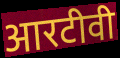
आरटीवी